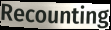
Recounting